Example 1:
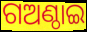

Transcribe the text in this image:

ଗଅଣ୍ଠାଇ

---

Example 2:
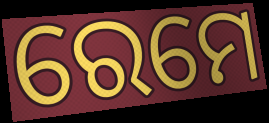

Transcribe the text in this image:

ରେମେ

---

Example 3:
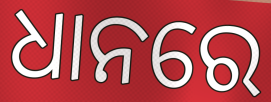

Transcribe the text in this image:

ଧାନରେ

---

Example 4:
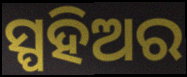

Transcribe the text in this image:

ସ୍ପହିଅର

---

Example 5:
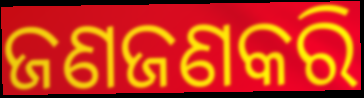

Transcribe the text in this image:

ଜଣଜଣକରି